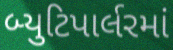
બ્યુટિપાર્લરમાં